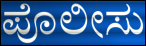
ಪೊಲೀಸು